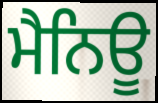
ਮੈਨਿਊ